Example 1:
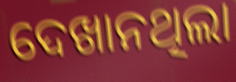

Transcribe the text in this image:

ଦେଖାନଥିଲା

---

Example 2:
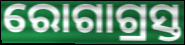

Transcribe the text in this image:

ରୋଗାଗ୍ରସ୍ତ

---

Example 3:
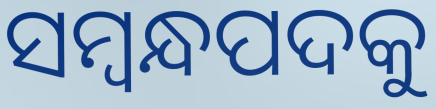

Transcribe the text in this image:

ସମ୍ବନ୍ଧପଦକୁ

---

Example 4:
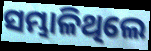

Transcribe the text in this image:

ସମ୍ଭାଳିଥିଲେ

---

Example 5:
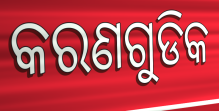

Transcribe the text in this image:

କରଣଗୁଡିକ